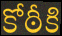
కోఠీకి